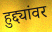
हुद्द्यांवर